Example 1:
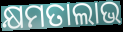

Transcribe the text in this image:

କ୍ଷମତାଲାଭ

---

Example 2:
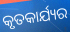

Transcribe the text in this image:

କୃତକାର୍ଯ୍ୟର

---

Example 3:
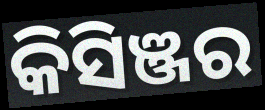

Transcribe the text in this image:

କିସିଞ୍ଜର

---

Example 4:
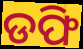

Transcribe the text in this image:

ଡଫି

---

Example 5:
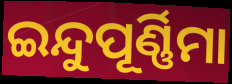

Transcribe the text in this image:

ଇନ୍ଦୁପୂର୍ଣ୍ଣିମା